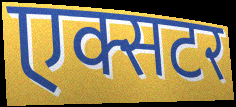
एक्सटर